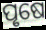
ପୃଷେ